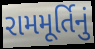
રામમૂર્તિનું